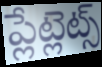
ప్లేట్లెట్స్